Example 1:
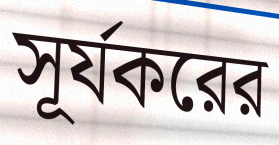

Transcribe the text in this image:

সূর্যকরের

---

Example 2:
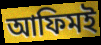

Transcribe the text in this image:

আফিমই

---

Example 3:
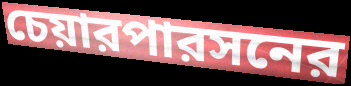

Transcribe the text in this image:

চেয়ারপারসনের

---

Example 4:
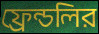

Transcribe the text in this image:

ফ্রেন্ডলির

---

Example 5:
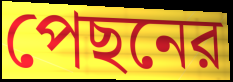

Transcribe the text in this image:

পেছনের